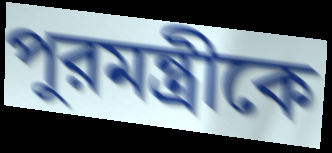
পুরমন্ত্রীকে